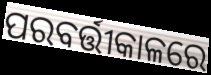
ପରବର୍ତ୍ତୀକାଳରେ